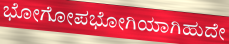
ಭೋಗೋಪಭೋಗಿಯಾಗಿಹುದೇ